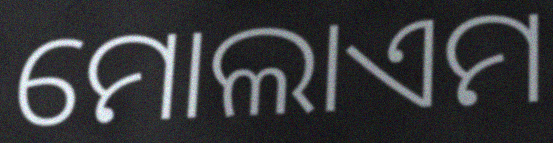
ମୋଲାଏମ